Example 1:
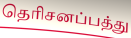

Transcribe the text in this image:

தெரிசனப்பத்து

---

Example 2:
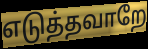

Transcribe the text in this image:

எடுத்தவாறே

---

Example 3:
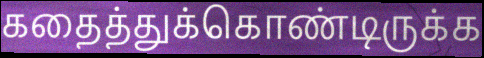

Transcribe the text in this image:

கதைத்துக்கொண்டிருக்க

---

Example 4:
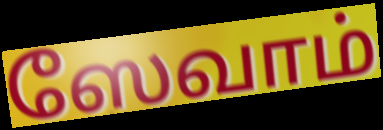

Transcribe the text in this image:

ஸேவாம்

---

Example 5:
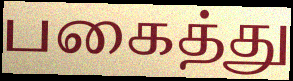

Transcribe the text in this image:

பகைத்து